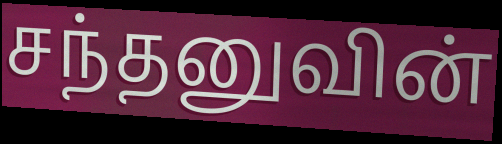
சந்தனுவின்